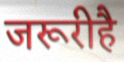
जरूरीहै